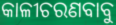
କାଳୀଚରଣବାବୁ